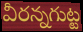
వీరన్నగుట్ట